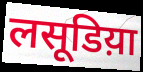
लसूडिय़ा